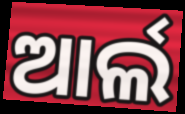
ଆର୍ଲ